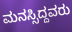
ಮನಸ್ಸಿದ್ದವರು